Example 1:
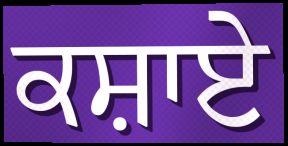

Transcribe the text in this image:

ਕਸ਼ਾਏ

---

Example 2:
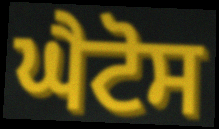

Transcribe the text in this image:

ਘੈਟੋਸ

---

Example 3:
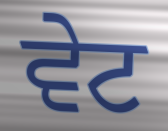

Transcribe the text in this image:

ਵੇਟ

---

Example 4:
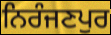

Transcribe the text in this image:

ਨਿਰੰਜਣਪੁਰ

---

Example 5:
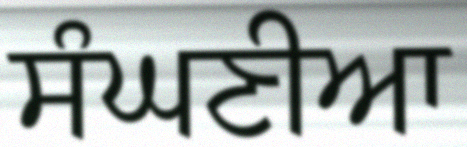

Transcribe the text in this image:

ਸੰਘਣੀਆ